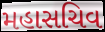
મહાસચિવ